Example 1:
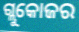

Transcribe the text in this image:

ଗ୍ଲୁକୋଜର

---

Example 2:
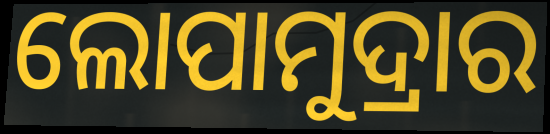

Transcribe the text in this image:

ଲୋପାମୁଦ୍ରାର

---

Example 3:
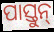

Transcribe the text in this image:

ପାସ୍ତୁନ୍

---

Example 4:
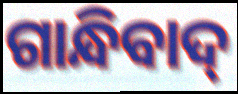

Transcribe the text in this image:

ଗାନ୍ଧିବାଦ୍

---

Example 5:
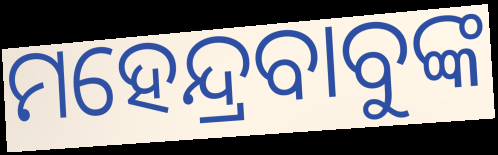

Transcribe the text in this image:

ମହେନ୍ଦ୍ରବାବୁଙ୍କ